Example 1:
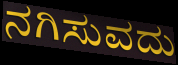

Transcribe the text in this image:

ನಗಿಸುವದು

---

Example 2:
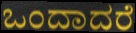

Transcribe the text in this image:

ಒಂದಾದರೆ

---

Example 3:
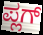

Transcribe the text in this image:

ಪ್ಲಗ್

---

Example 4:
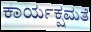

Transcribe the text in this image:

ಕಾರ್ಯಕ್ಷಮತೆ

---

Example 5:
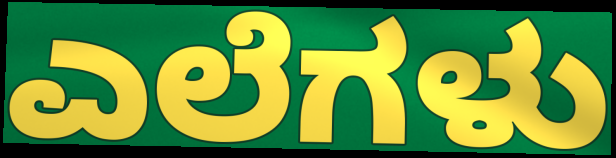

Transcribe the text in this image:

ಎಲೆಗಳು